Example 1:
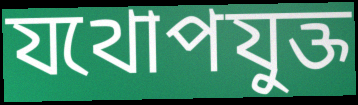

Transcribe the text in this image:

যথোপযুক্ত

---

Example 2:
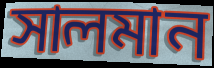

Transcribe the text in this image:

সালমান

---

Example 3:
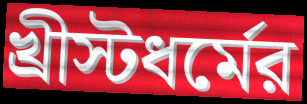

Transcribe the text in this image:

খ্রীস্টধর্মের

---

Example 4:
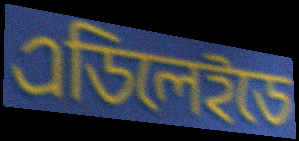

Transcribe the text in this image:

এডিলেইডে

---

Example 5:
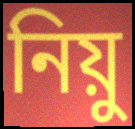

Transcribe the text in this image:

নিয়ু